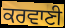
ਕਰਵਾਣੀ